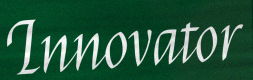
Innovator